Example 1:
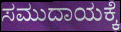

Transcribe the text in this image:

ಸಮುದಾಯಕ್ಕೆ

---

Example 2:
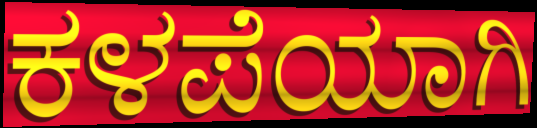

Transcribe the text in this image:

ಕಳಪೆಯಾಗಿ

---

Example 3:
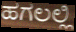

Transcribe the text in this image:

ಹಗಲಲ್ಲಿ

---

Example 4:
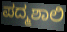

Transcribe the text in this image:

ಪದ್ಮಶಾಲಿ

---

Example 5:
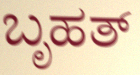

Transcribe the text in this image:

ಬೃಹತ್